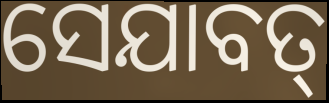
ସେଯାବତ୍